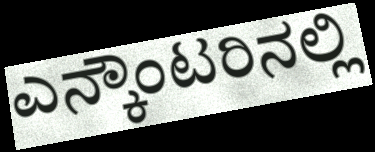
ಎನ್ಕೌಂಟರಿನಲ್ಲಿ